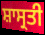
ਸ਼ਾਸ੍ਰਤੀ